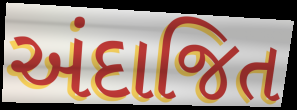
અંદાજિત